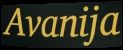
Avanija